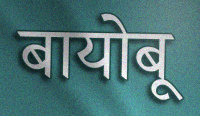
बायोबू